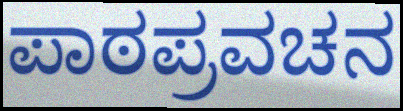
ಪಾಠಪ್ರವಚನ